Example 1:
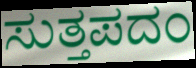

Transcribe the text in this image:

ಸುತ್ತಪದಂ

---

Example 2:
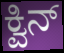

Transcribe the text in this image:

ಕ್ವಿನ್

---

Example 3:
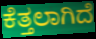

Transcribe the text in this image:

ಕೆತ್ತಲಾಗಿದೆ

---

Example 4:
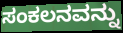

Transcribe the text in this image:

ಸಂಕಲನವನ್ನು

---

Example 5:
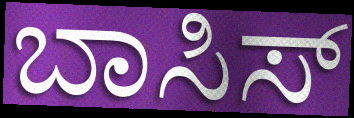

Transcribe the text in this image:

ಬಾಸಿಸ್